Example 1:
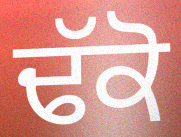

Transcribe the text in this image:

ਢੱਕੋ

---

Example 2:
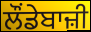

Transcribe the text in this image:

ਲੌਂਡੇਬਾਜ਼ੀ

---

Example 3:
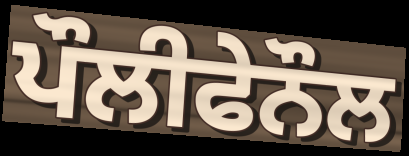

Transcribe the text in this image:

ਪੌਲੀਫੇਨੌਲ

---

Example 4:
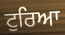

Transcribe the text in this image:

ਟੁਰਿਆ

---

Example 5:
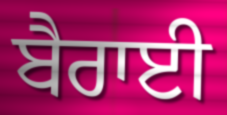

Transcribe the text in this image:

ਬੈਰਾਈ